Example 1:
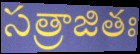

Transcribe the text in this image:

సత్రాజితః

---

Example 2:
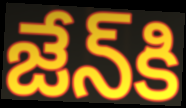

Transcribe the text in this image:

జేన్‌కి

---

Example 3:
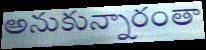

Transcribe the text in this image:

అనుకున్నారంతా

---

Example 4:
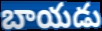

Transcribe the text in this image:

బాయడు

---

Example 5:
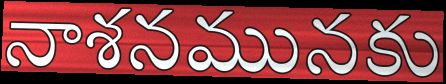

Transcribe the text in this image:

నాశనమునకు